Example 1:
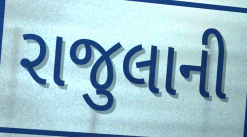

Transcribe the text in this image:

રાજુલાની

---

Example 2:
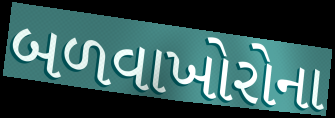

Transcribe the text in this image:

બળવાખોરોના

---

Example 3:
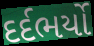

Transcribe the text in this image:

દર્દભર્યો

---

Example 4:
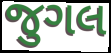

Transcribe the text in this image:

જુગલ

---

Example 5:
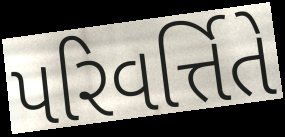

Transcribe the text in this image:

પરિવર્ત્તિતે